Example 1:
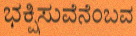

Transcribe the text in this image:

ಭಕ್ಷಿಸುವೆನೆಂಬವ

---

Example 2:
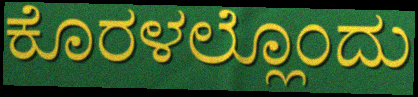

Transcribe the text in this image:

ಕೊರಳಲ್ಲೊಂದು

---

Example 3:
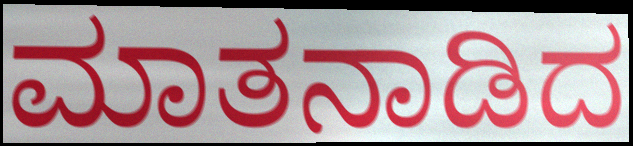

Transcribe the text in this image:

ಮಾತನಾಡಿದ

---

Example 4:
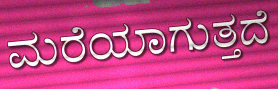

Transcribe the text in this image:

ಮರೆಯಾಗುತ್ತದೆ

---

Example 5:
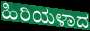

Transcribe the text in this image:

ಹಿರಿಯಳಾದ